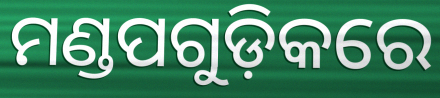
ମଣ୍ଡପଗୁଡ଼ିକରେ